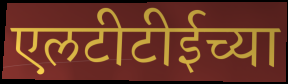
एलटीटीईच्या